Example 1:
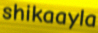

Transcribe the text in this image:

shikaayla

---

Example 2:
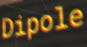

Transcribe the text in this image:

Dipole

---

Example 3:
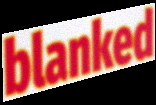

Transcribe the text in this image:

blanked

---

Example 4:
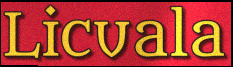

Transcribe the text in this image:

Licuala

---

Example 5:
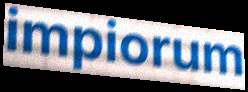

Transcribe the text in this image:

impiorum